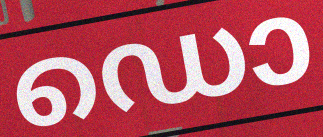
ഡൊ